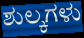
ಶುಲ್ಕಗಳು